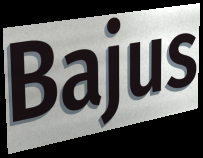
Bajus